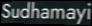
Sudhamayi